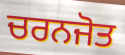
ਚਰਨਜੋਤ